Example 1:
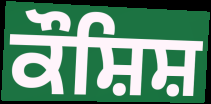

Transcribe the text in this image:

ਕੌਸ਼ਿਸ਼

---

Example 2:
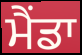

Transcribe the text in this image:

ਮੈਂਡਾ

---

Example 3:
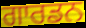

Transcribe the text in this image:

ਗਾਰਡਨ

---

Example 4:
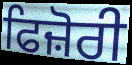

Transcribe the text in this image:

ਫਿਜ਼ੋਰੀ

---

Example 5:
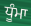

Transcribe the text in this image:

ਧੂੰਮਾ